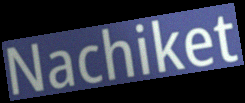
Nachiket